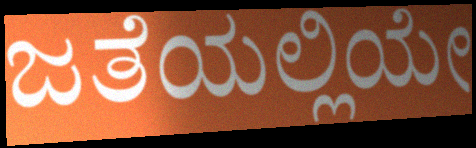
ಜತೆಯಲ್ಲಿಯೇ